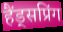
हैंड्सप्रिंग